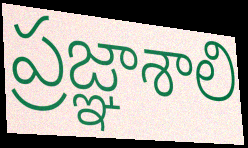
ప్రజ్ఞాశాలి